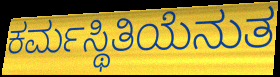
ಕರ್ಮಸ್ಥಿತಿಯೆನುತ